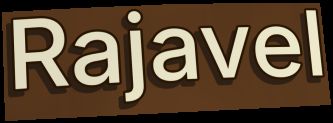
Rajavel